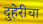
दुहेरीचा